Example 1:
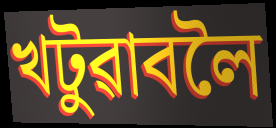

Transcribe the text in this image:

খটুৱাবলৈ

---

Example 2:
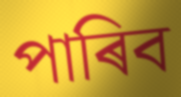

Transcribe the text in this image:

পাৰিব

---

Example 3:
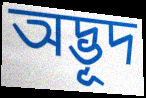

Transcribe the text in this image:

অদ্ভূদ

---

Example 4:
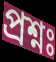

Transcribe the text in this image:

প্ৰশ্নঃ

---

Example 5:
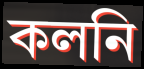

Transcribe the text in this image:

কলনি